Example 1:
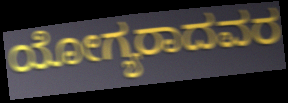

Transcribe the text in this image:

ಯೋಗ್ಯರಾದವರ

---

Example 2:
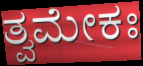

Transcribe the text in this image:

ತ್ವಮೇಕಃ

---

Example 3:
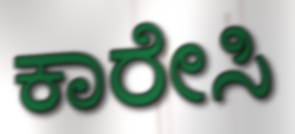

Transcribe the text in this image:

ಕಾರೇಸಿ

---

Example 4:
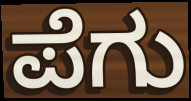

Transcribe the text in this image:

ಪೆಗು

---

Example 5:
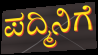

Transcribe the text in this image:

ಪದ್ಮಿನಿಗೆ